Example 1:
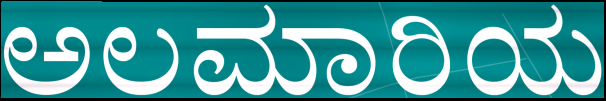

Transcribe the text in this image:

ಅಲಮಾರಿಯ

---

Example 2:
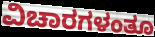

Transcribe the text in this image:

ವಿಚಾರಗಳಂತೂ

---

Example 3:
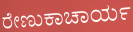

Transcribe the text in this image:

ರೇಣುಕಾಚಾರ್ಯ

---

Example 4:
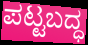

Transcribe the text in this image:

ಪಟ್ಟಬದ್ಧ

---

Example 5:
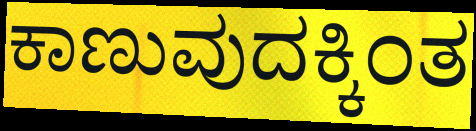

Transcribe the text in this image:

ಕಾಣುವುದಕ್ಕಿಂತ